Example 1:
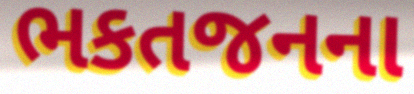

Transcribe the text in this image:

ભકતજનના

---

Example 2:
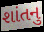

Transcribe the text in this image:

શાંતનુ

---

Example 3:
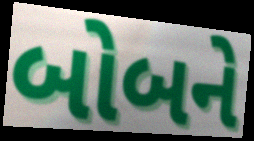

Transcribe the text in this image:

બોબને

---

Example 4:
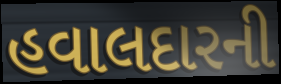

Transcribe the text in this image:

હવાલદારની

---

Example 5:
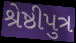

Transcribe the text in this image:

શ્રેષ્ઠીપુત્ર